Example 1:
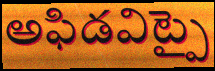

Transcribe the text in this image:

అఫిడవిట్పై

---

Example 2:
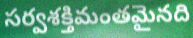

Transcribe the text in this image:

సర్వశక్తిమంతమైనది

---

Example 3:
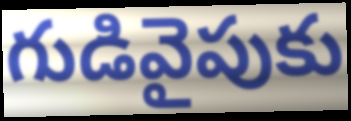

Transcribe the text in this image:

గుడివైపుకు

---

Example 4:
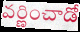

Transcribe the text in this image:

వర్ణించాడో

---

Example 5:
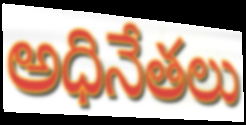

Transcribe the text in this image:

అధినేతలు